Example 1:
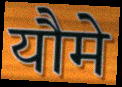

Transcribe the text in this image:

यौमे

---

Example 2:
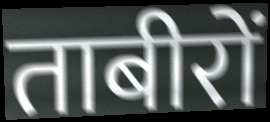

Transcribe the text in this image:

ताबीरों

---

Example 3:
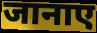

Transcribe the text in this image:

जानाए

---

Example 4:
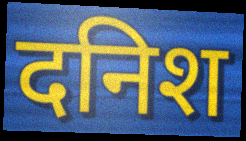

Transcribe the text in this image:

दनिश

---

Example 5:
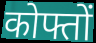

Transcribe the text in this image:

कोफ्तों